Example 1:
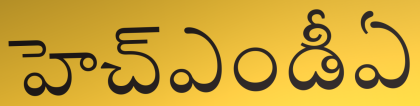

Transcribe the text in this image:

హెచ్ఎండీఏ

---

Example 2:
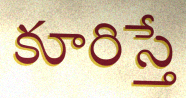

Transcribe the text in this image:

కూరిస్తే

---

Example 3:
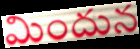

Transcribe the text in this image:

మిందున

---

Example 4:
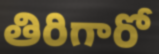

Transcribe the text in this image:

తిరిగారో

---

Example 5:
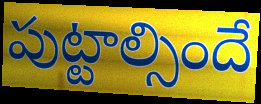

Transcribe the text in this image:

పుట్టాల్సిందే